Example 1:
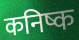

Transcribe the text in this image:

कनिष्क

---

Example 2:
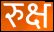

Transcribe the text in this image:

रुक्ष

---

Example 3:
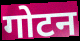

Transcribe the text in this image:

गोटन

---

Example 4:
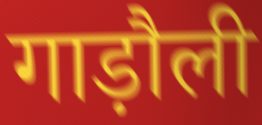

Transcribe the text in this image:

गाड़ौली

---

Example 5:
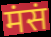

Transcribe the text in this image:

मंसं